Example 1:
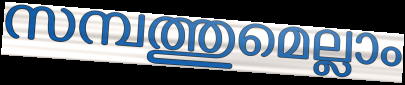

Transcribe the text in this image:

സമ്പത്തുമെല്ലാം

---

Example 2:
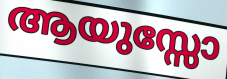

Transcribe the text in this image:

ആയുസ്സോ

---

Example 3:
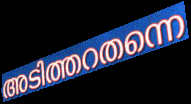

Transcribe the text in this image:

അടിത്തറതന്നെ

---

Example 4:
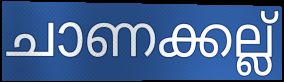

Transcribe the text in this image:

ചാണക്കല്ല്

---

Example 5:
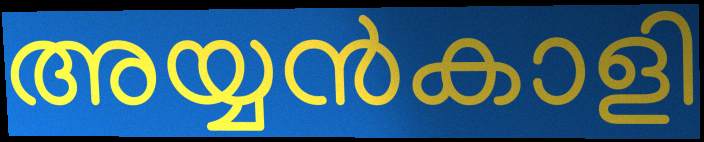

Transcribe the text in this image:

അയ്യൻകാളി